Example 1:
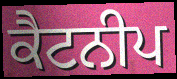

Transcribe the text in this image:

ਕੈਟਨੀਪ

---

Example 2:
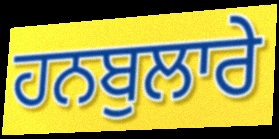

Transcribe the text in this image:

ਹਨਬੁਲਾਰੇ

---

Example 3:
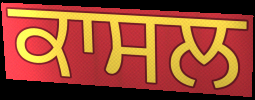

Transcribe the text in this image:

ਕਾਸਲ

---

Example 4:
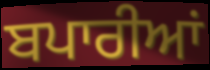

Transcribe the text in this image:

ਬਪਾਰੀਆਂ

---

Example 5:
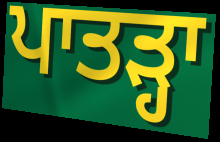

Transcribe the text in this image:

ਪਾਤੜ੍ਹਾ